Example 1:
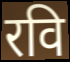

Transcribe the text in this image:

रवि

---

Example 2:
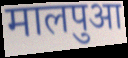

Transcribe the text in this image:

मालपुआ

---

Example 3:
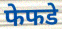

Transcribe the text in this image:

फेफडे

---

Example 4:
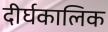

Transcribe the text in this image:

दीर्घकालिक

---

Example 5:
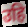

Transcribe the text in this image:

उहि